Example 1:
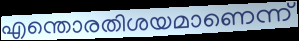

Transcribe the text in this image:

എന്തൊരതിശയമാണെന്ന്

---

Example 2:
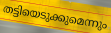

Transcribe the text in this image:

തട്ടിയെടുക്കുമെന്നും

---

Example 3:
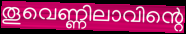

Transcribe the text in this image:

തൂവെണ്ണിലാവിന്റെ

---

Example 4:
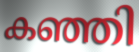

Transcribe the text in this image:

കഞ്ഞി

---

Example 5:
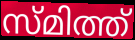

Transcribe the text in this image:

സ്മിത്ത്